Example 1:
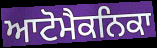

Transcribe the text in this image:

ਆਟੋਮੈਕਨਿਕਾ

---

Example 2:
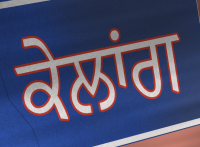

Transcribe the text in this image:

ਕੇਲਾਂਗ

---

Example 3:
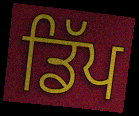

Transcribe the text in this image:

ਡਿੱਪ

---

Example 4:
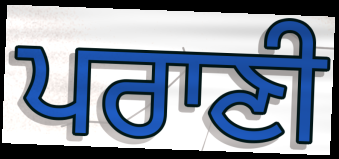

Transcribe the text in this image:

ਪਰਾਣੀ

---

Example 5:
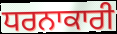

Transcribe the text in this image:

ਧਰਨਾਕਾਰੀ